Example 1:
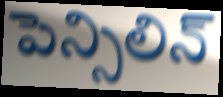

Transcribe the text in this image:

పెన్సిలిన్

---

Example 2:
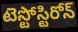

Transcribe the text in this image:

టెస్టోస్టిరోన్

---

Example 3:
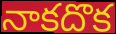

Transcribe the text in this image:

నాకదొక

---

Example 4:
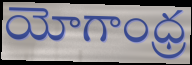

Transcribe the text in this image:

యోగాంధ్ర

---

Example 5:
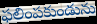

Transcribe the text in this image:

ఫలింపకుండును